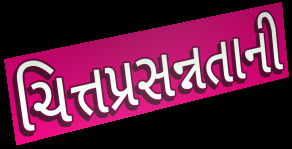
ચિત્તપ્રસન્નતાની